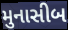
મુનાસીબ